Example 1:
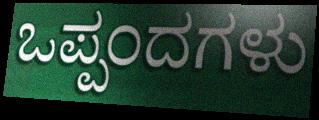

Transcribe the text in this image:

ಒಪ್ಪಂದಗಳು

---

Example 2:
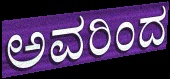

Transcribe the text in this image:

ಅವರಿಂದ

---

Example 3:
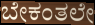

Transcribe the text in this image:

ಬೇಕಂತಲೇ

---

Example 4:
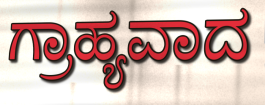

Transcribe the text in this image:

ಗ್ರಾಹ್ಯವಾದ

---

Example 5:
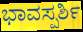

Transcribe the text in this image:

ಭಾವಸ್ಪರ್ಶಿ